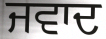
ਜਵਾਦ